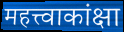
महत्त्वाकांक्षा